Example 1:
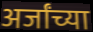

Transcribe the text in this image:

अर्जांच्या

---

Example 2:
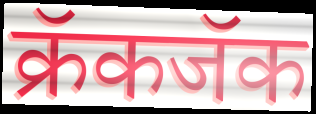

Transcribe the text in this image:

क्रॅकजॅक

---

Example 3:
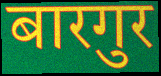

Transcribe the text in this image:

बारगुर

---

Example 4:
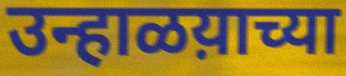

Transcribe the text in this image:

उन्हाळय़ाच्या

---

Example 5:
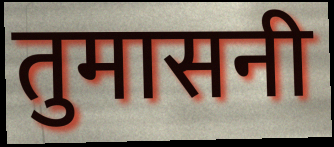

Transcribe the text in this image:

तुमासनी